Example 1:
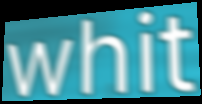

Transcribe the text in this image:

whit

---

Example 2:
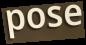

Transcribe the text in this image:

pose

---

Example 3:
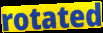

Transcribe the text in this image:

rotated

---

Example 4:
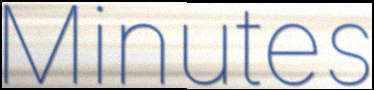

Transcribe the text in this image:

Minutes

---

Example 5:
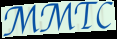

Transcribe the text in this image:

MMTC